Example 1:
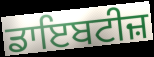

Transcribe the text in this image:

ਡਾਇਬਟੀਜ਼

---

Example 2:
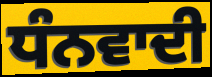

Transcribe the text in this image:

ਧੰਨਵਾਦੀ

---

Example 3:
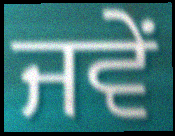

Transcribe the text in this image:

ਜਵੇਂ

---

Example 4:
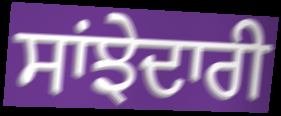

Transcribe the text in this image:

ਸਾਂਝੇਦਾਰੀ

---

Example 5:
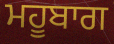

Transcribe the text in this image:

ਮਹੂਬਾਗ